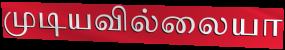
முடியவில்லையா